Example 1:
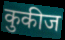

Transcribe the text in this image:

कुकीज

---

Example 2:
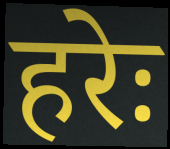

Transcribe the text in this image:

हरेः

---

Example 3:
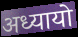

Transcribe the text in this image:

अध्यायो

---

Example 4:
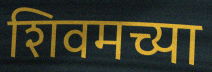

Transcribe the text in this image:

शिवमच्या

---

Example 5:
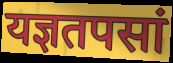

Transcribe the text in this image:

यज्ञतपसां